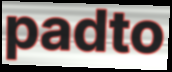
padto